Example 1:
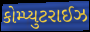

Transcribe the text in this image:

કોમ્પ્યુટરાઈઝ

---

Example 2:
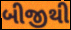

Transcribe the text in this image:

બીજીથી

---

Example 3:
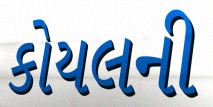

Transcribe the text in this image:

કોયલની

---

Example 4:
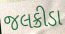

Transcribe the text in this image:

જલક્રીડા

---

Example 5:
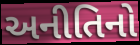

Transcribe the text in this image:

અનીતિનો